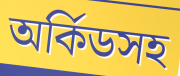
অর্কিডসহ